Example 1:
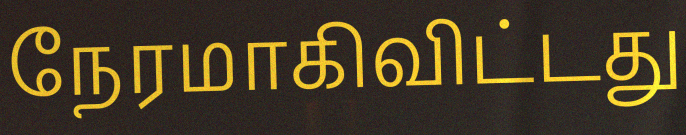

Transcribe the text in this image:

நேரமாகிவிட்டது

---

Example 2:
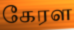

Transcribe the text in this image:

கேரள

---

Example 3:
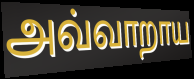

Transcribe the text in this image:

அவ்வாறாய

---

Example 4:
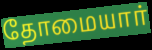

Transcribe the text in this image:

தோமையார்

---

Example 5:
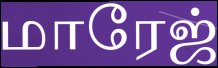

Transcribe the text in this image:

மாரேஜ்